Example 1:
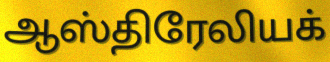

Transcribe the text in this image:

ஆஸ்திரேலியக்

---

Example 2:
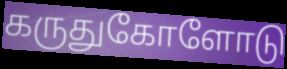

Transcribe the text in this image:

கருதுகோளோடு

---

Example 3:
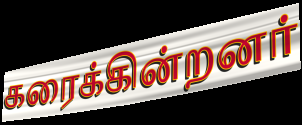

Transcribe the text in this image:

கரைக்கின்றனர்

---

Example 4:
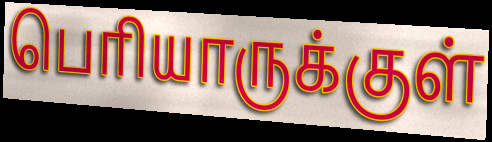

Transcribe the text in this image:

பெரியாருக்குள்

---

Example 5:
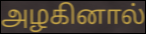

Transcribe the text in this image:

அழகினால்